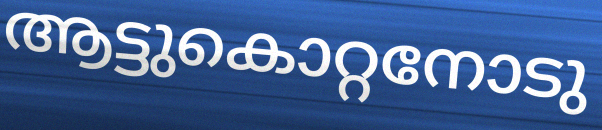
ആട്ടുകൊറ്റനോടു